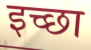
इच्छा